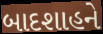
બાદશાહને